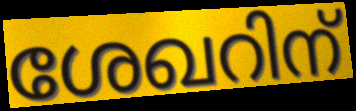
ശേഖറിന്